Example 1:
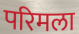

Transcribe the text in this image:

परिमला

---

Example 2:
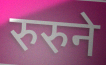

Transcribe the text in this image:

रुरुने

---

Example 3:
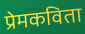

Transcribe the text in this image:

प्रेमकविता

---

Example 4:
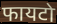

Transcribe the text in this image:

फायटो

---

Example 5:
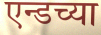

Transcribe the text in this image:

एन्डच्या